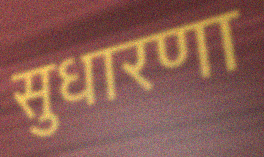
सुधारणा